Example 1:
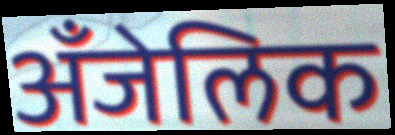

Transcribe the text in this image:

अँजेलिक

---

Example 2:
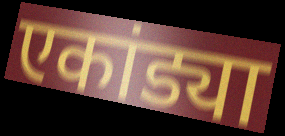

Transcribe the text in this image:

एकांड्या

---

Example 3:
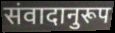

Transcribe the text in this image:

संवादानुरूप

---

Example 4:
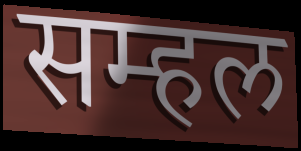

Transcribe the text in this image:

सम्हल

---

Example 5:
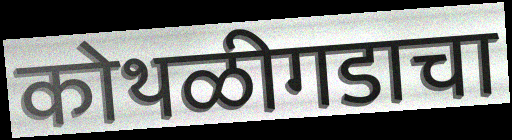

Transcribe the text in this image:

कोथळीगडाचा